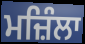
ਮਜ਼ਿੰਲਾ